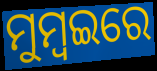
ମୁମ୍ବଇରେ